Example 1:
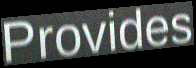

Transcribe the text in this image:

Provides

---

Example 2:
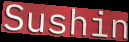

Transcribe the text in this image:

Sushin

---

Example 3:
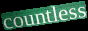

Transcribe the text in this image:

countless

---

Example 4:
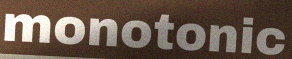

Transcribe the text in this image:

monotonic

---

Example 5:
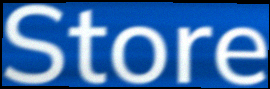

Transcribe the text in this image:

Store